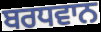
ਬਰਧਵਾਨ